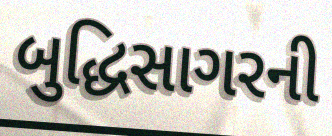
બુદ્ધિસાગરની